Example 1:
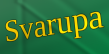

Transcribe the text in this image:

Svarupa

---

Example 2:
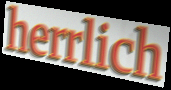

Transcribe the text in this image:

herrlich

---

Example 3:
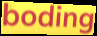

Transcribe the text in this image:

boding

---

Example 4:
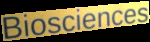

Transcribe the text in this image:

Biosciences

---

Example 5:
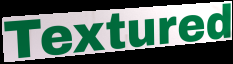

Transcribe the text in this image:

Textured